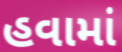
હવામાં